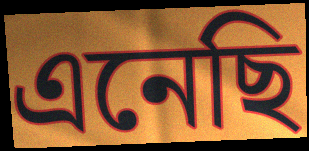
এনেছি